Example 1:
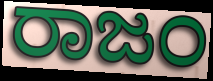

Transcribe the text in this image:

ರಾಜಂ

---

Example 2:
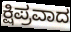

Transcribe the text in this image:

ಕ್ಷಿಪ್ರವಾದ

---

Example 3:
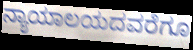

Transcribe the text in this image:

ನ್ಯಾಯಾಲಯದವರೆಗೂ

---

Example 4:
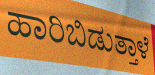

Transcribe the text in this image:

ಹಾರಿಬಿಡುತ್ತಾಳೆ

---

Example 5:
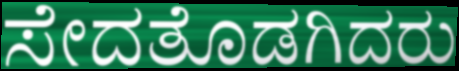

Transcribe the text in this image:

ಸೇದತೊಡಗಿದರು